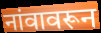
नांवावरून